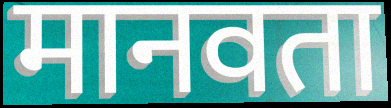
मानवता